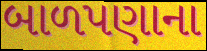
બાળપણાના